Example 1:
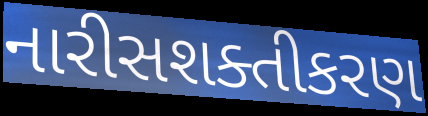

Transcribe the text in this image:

નારીસશક્તીકરણ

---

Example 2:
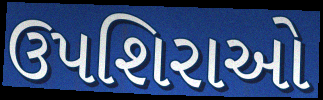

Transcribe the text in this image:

ઉપશિરાઓ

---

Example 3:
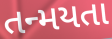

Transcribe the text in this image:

તન્મયતા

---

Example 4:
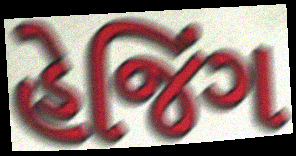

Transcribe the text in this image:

હેજિંગ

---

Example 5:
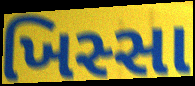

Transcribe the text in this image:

ખિસ્સા